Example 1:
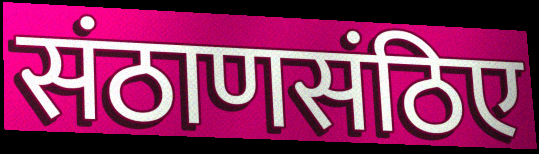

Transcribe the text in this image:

संठाणसंठिए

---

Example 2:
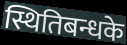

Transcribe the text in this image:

स्थितिबन्धके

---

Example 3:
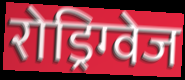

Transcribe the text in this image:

रोड्रिग्वेज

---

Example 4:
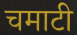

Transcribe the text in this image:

चमाटी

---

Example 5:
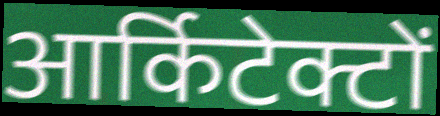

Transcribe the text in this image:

आर्किटेक्टों